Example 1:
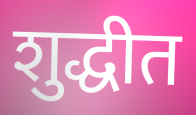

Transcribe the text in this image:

शुद्धीत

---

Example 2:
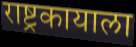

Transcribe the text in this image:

राष्ट्रकायाला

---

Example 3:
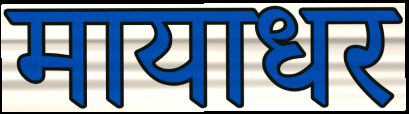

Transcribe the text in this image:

मायाधर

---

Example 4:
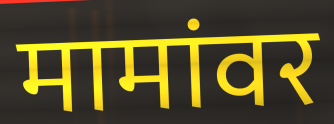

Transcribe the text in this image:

मामांवर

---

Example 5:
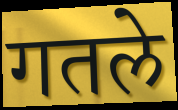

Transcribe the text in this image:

गतले